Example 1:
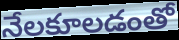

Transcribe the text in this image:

నేలకూలడంతో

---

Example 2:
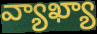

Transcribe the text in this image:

వ్యాఖ్యా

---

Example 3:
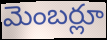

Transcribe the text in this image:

మెంబర్లూ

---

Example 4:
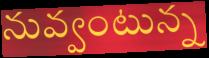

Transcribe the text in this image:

నువ్వంటున్న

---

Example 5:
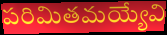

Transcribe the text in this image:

పరిమితమయ్యేవి